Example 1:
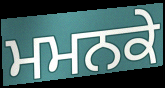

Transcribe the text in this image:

ਮਮਨਕੇ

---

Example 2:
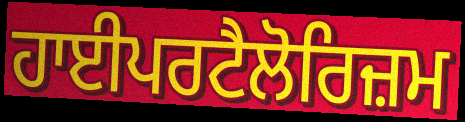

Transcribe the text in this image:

ਹਾਈਪਰਟੈਲੋਰਿਜ਼ਮ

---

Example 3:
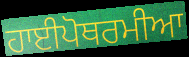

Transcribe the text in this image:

ਹਾਈਪੋਥਰਮੀਆ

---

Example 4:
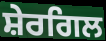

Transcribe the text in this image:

ਸ਼ੇਰਗਿਲ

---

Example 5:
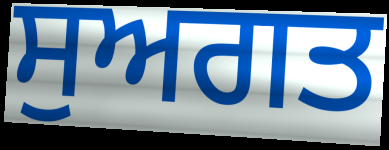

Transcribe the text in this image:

ਸੁਅਗਤ